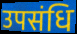
उपसंधि